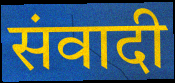
संवादी